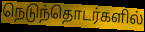
நெடுந்தொடர்களில்